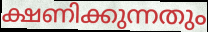
ക്ഷണിക്കുന്നതും